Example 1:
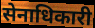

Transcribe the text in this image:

सेनाधिकारी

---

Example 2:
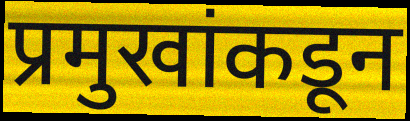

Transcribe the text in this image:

प्रमुखांकडून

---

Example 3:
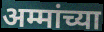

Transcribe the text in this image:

अम्मांच्या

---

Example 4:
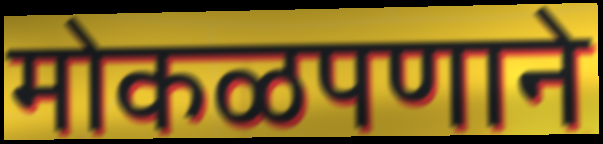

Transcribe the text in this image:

मोकळपणाने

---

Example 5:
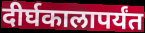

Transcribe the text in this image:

दीर्घकालापर्यंत